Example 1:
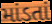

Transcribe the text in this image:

માંડતાં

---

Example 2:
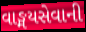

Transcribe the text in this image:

વાઙ્મયસેવાની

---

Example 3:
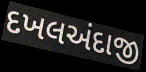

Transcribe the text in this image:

દખલઅંદાજી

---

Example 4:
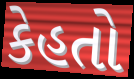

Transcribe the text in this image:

કેહતો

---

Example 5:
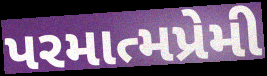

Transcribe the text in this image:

પરમાત્મપ્રેમી